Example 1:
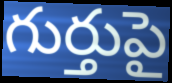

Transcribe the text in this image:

గుర్తుపై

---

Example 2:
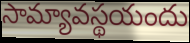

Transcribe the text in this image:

సామ్యావస్థయందు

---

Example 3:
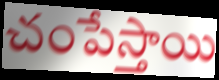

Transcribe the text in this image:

చంపేస్తాయి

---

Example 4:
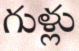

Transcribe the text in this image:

గుళ్లు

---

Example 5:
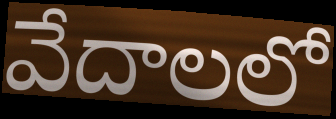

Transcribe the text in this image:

వేదాలలో